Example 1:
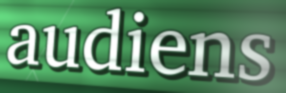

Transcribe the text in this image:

audiens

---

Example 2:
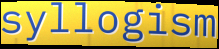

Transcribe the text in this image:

syllogism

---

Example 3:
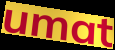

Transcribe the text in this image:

umat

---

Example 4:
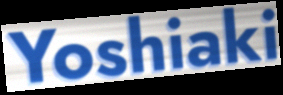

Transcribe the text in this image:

Yoshiaki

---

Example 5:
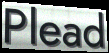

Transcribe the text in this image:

Plead